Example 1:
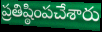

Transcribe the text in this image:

ప్రతిష్ఠింపచేశారు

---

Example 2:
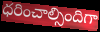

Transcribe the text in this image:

ధరించాల్సిందిగా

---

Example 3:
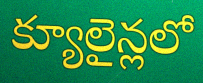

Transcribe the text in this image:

క్యూలైన్లలో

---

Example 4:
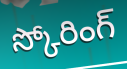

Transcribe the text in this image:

స్కోరింగ్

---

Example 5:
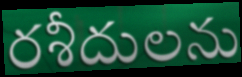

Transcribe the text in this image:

రశీదులను